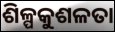
ଶିଳ୍ପକୁଶଳତା